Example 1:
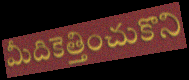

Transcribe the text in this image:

మీదికెత్తించుకొని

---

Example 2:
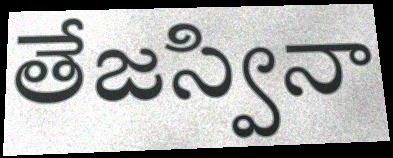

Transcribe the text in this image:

తేజస్వినా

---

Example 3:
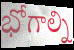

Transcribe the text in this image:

భోగాల్ని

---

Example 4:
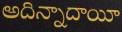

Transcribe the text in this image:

అదిన్నాదాయీ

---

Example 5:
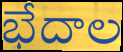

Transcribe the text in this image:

భేదాల